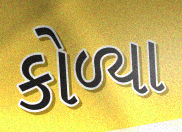
કોળ્યા